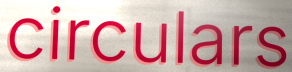
circulars